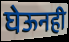
घेऊनही